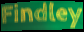
Findley